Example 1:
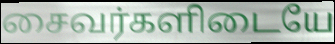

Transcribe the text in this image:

சைவர்களிடையே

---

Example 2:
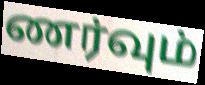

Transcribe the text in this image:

ணர்வும்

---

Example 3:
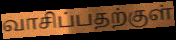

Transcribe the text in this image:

வாசிப்பதற்குள்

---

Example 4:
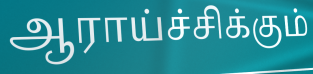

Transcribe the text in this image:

ஆராய்ச்சிக்கும்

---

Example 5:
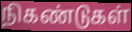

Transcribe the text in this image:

நிகண்டுகள்